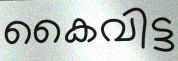
കൈവിട്ട